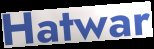
Hatwar